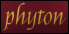
phyton